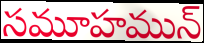
సమూహమున్